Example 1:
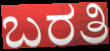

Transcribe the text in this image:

ಬರತಿ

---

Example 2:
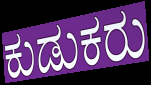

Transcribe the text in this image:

ಕುಡುಕರು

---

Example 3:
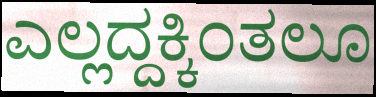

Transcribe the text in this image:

ಎಲ್ಲದ್ದಕ್ಕಿಂತಲೂ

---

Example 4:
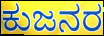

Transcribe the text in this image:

ಕುಜನರ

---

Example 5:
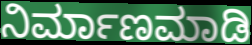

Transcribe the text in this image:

ನಿರ್ಮಾಣಮಾಡಿ